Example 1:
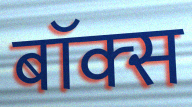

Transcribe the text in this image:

बॉक्‍स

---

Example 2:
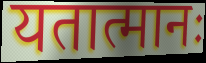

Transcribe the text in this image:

यतात्मानः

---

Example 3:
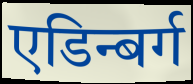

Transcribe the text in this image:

एडिन्बर्ग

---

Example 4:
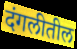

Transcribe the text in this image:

दंगलीतील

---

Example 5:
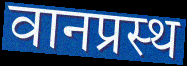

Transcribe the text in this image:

वानप्रस्थ